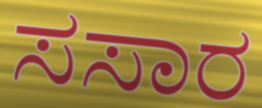
ಸಸಾರ